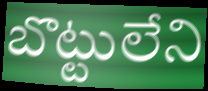
బొట్టులేని